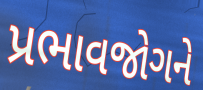
પ્રભાવજોગને